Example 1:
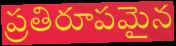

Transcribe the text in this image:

ప్రతిరూపమైన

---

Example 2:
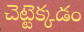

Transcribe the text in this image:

చెట్టెక్కడం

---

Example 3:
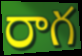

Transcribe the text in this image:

రాగ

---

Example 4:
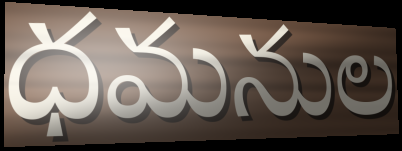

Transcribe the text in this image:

ధమనుల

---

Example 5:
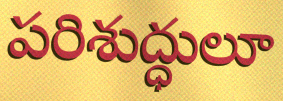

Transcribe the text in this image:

పరిశుద్ధులూ